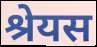
श्रेयस